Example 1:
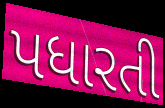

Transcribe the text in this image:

પધારતી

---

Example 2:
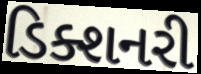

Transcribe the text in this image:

ડિક્શનરી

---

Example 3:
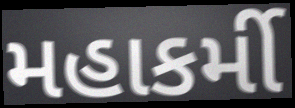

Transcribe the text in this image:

મહાકર્મી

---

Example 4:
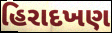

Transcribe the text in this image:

હિરાદખણ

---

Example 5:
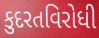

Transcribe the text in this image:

કુદરતવિરોધી